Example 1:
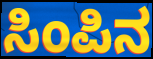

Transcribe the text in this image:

ಸಿಂಪಿನ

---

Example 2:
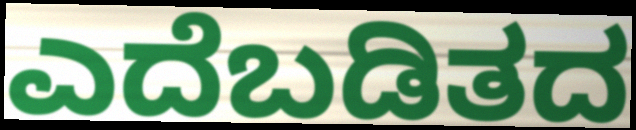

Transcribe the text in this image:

ಎದೆಬಡಿತದ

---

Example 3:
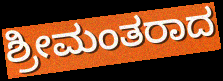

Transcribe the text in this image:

ಶ್ರೀಮಂತರಾದ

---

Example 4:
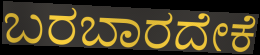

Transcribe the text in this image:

ಬರಬಾರದೇಕೆ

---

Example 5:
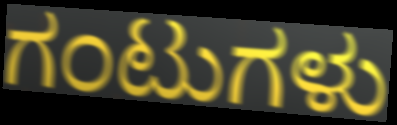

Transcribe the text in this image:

ಗಂಟುಗಳು